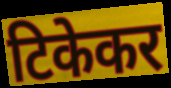
टिकेकर